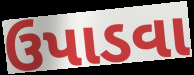
ઉપાડવા